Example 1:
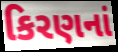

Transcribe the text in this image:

કિરણનાં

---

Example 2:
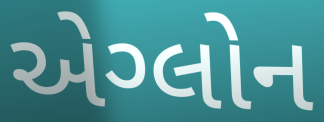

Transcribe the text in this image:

એગ્લોન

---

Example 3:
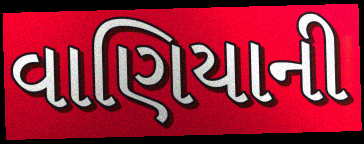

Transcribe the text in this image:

વાણિયાની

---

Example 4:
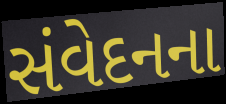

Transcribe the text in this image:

સંવેદનના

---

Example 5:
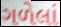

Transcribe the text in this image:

ગળેલાં